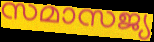
സമാസജ്യ